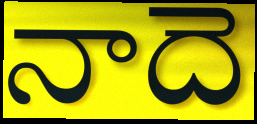
నాదె